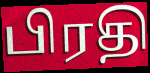
பிரதி